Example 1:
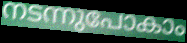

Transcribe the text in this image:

നടന്നുപോകാം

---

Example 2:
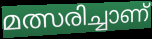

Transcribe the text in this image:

മത്സരിച്ചാണ്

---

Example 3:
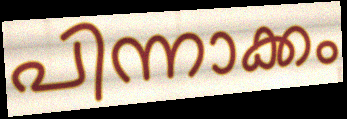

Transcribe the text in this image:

പിന്നാക്കം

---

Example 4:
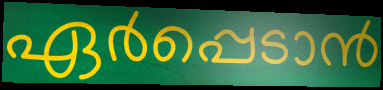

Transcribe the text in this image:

ഏർപ്പെടാൻ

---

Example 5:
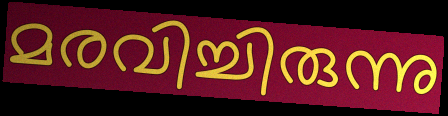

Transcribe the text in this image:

മരവിച്ചിരുന്നു